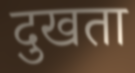
दुखता